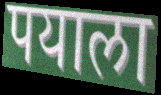
पयाला